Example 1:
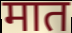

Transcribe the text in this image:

मात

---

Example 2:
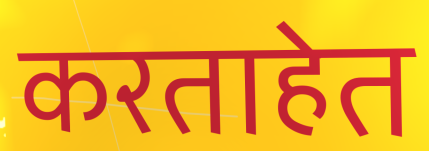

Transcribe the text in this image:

करताहेत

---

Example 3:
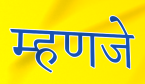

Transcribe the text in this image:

म्हणजे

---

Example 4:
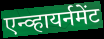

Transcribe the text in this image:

एन्व्हायर्नमेंट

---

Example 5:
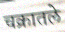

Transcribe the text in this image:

चक्रातले